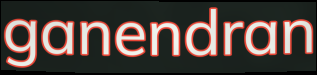
ganendran